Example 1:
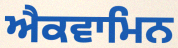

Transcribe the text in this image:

ਐਕਵਾਮਿਨ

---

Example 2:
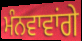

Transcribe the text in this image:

ਮੰਨਵਾਵਾਂਗੇ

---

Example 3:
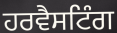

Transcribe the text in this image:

ਹਰਵੈਸਟਿੰਗ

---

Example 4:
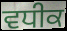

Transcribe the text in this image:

ਵਧੀਕ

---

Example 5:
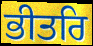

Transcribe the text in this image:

ਭੀਤਰਿ